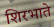
शिरभाते